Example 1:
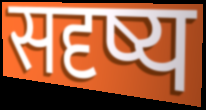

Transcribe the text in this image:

सदृष्य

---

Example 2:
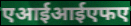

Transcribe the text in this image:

एआईआईएफए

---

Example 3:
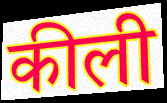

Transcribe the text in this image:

कीली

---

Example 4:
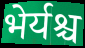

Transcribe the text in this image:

भेर्यश्च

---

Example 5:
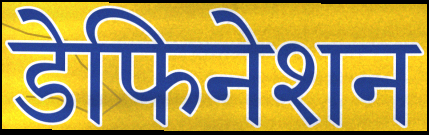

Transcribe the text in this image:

डेफिनेशन